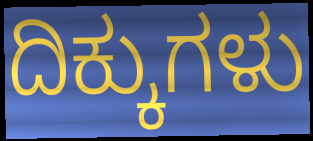
ದಿಕ್ಕುಗಳು